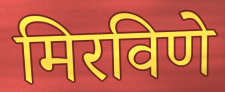
मिरविणे